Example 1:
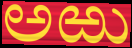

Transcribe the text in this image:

ಅಱು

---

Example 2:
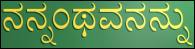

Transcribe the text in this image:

ನನ್ನಂಥವನನ್ನು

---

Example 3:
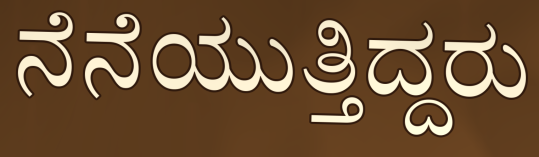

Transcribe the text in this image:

ನೆನೆಯುತ್ತಿದ್ದರು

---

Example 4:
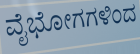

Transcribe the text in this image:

ವೈಭೋಗಗಳಿಂದ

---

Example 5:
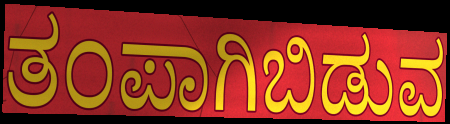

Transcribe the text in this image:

ತಂಪಾಗಿಬಿಡುವ